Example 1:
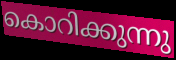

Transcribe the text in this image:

കൊറിക്കുന്നു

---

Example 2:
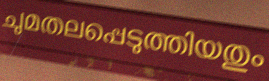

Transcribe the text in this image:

ചുമതലപ്പെടുത്തിയതും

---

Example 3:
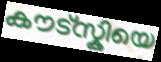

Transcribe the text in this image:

കൗട്സ്കിയെ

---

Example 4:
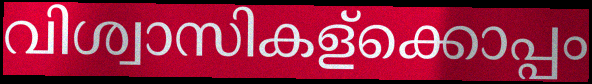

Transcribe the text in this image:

വിശ്വാസികള്ക്കൊപ്പം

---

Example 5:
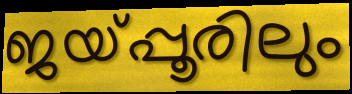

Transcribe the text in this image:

ജയ്പ്പൂരിലും